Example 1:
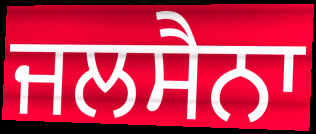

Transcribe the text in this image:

ਜਲਸੈਨਾ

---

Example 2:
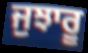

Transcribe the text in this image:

ਜੁਝਾਰੂ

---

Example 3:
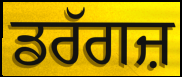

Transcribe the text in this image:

ਡਰੱਗਜ਼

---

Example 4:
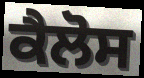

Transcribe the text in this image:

ਕੈਲੋਸ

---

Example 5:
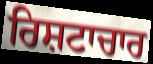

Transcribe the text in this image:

ਰਿਸ਼ਟਾਚਾਰ